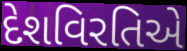
દેશવિરતિએ